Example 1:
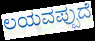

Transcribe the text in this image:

ಲಯವಪ್ಪುದೆ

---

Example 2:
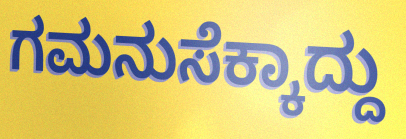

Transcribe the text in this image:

ಗಮನುಸೆಕ್ಕಾದ್ದು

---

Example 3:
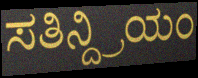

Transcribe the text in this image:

ಸತಿನ್ದ್ರಿಯಂ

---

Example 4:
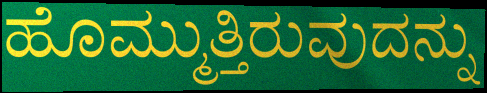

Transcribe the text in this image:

ಹೊಮ್ಮುತ್ತಿರುವುದನ್ನು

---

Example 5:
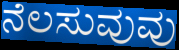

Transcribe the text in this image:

ನೆಲಸುವುವು